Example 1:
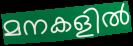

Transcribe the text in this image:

മനകളിൽ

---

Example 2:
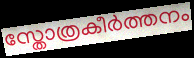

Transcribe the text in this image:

സ്തോത്രകീർത്തനം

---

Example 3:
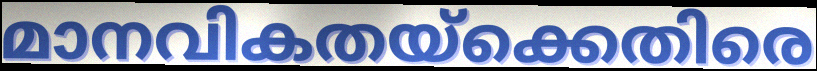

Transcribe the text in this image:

മാനവികതയ്ക്കെതിരെ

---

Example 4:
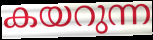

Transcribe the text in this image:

കയറുന്ന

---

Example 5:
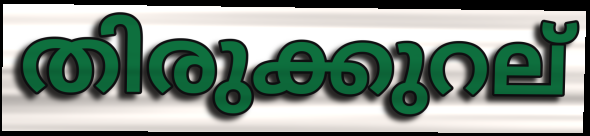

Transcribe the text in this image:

തിരുക്കുറല്